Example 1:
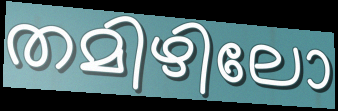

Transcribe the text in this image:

തമിഴിലോ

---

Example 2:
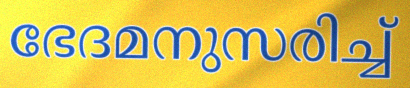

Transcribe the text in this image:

ഭേദമനുസരിച്ച്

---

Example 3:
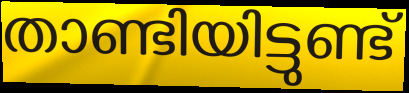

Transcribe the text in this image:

താണ്ടിയിട്ടുണ്ട്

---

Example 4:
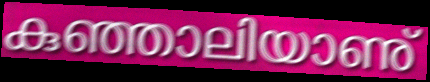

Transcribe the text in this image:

കുഞ്ഞാലിയാണു്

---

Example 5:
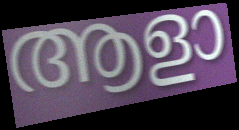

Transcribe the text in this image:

ആളാ